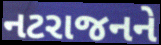
નટરાજનને